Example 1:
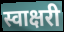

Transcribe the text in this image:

स्वाक्षरी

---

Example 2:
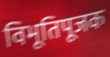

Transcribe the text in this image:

विभूतिपूजक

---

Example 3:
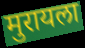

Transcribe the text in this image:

मुरायला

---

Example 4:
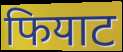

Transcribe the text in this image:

फियाट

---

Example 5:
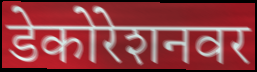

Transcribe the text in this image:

डेकोरेशनवर